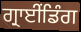
ਗ੍ਰਾਈਂਡਿੰਗ